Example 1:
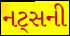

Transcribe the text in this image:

નટ્સની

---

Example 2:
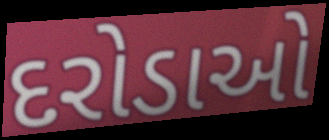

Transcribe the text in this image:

દરોડાઓ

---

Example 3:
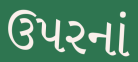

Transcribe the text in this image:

ઉપરનાં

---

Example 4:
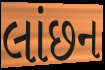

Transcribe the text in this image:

લાંછન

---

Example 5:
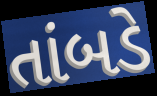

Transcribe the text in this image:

તાંબડે